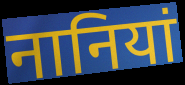
नानियां